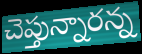
చెప్తున్నారన్న